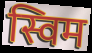
स्विम